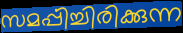
സമൎപ്പിച്ചിരിക്കുന്ന